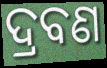
ଦ୍ରବଣ